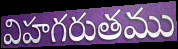
విహగరుతము